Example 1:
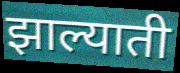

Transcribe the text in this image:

झाल्याती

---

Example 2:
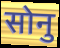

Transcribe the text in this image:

सोनु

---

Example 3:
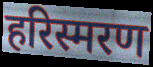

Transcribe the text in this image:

हरिस्मरण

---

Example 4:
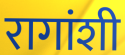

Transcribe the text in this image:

रागांशी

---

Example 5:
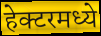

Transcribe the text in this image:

हेक्टरमध्ये